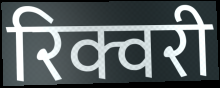
रिक्वरी